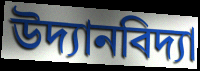
উদ্যানবিদ্যা